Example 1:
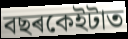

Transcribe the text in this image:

বছৰকেইটাত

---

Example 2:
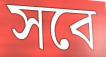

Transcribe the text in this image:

সবে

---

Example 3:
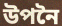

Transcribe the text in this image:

উপনৈ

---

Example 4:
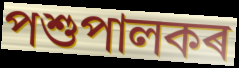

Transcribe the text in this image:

পশুপালকৰ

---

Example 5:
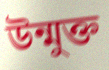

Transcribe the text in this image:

উন্মুক্ত